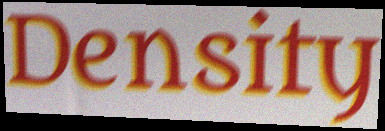
Density